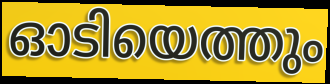
ഓടിയെത്തും